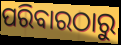
ପରିବାରଠାରୁ